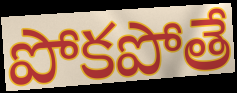
పోకపోతే